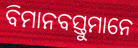
ବିମାନବସ୍ତୁମାନେ